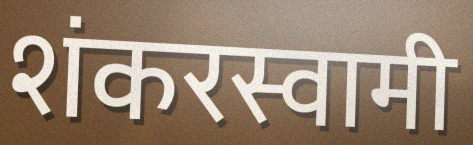
शंकरस्वामी